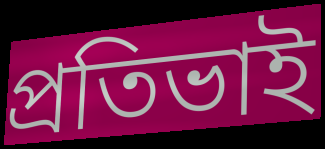
প্রতিভাই